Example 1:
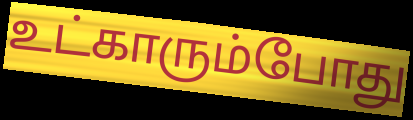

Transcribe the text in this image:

உட்காரும்போது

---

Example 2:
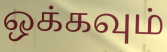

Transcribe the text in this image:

ஒக்கவும்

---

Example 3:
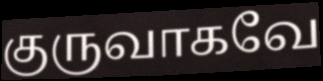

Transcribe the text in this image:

குருவாகவே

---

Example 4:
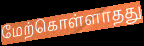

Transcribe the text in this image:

மேற்கொள்ளாதது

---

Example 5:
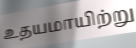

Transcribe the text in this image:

உதயமாயிற்று